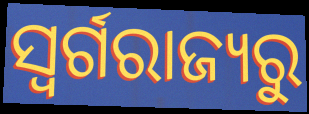
ସ୍ବର୍ଗରାଜ୍ୟରୁ